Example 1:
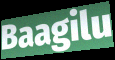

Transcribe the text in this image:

Baagilu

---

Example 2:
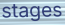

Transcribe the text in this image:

stages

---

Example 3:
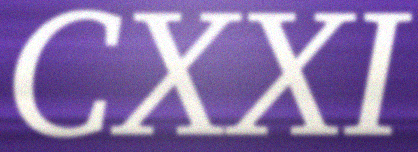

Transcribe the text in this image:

CXXI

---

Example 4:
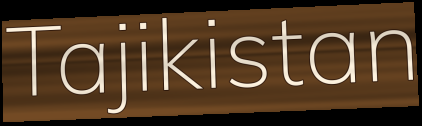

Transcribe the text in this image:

Tajikistan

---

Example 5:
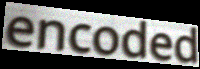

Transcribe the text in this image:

encoded